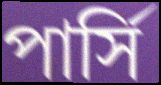
পার্সি